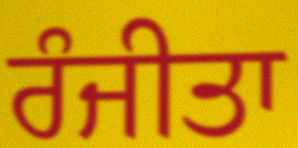
ਰੰਜੀਤਾ